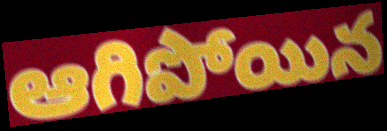
ఆగిపోయిన